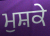
ਮੁਸ਼ਕੇ